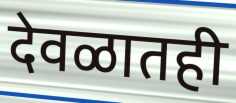
देवळातही